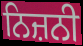
ਨਿਜ਼ਨੀ